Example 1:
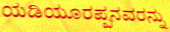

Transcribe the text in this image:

ಯಡಿಯೂರಪ್ಪನವರನ್ನು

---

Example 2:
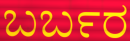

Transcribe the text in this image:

ಬರ್ಬರ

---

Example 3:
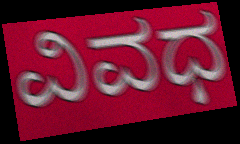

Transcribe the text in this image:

ವಿವಧ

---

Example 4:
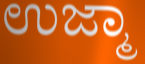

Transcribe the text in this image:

ಉಜ್ಮಾ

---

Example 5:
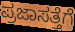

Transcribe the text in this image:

ಪ್ರಜಾಸತ್ತೆಗೆ